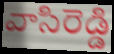
వాసిరెడ్డి